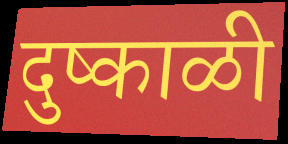
दुष्काळी